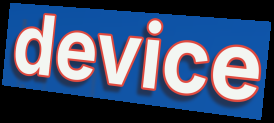
device